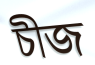
চীজ